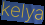
kelya